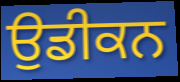
ਉਡੀਕਨ